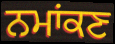
ਨਮਾਂਕਣ